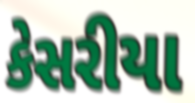
કેસરીયા